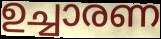
ഉച്ചാരണ